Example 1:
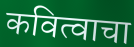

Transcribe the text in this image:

कवित्वाचा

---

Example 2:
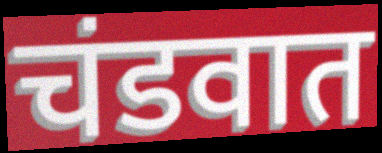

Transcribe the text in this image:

चंडवात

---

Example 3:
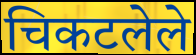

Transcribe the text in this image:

चिकटलेले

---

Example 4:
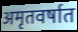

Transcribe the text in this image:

अमृतवर्षात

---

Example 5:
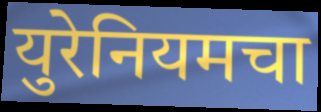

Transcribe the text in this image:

युरेनियमचा